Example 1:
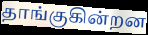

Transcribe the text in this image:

தாங்குகின்றன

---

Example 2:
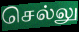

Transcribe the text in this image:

செல்லு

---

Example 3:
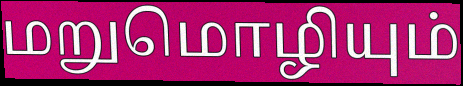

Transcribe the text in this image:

மறுமொழியும்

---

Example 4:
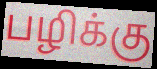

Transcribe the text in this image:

பழிக்கு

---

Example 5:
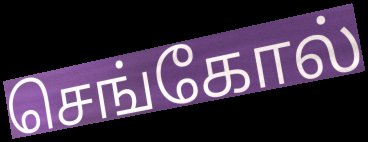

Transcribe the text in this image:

செங்கோல்